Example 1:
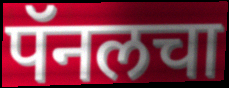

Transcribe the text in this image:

पॅनलचा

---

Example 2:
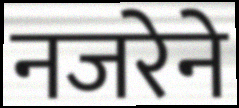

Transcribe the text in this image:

नजरेने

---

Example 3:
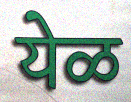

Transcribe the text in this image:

येळ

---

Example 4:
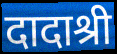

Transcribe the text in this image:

दादाश्री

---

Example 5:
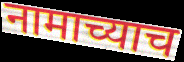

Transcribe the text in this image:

नामाच्याच